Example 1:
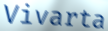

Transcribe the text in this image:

Vivarta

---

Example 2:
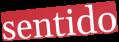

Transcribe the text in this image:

sentido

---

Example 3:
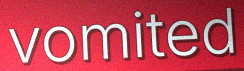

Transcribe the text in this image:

vomited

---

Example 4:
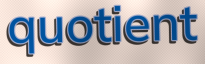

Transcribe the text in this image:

quotient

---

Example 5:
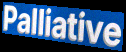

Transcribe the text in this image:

Palliative